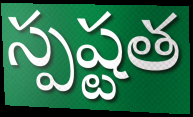
స్పష్టత